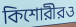
কিশোরীরও